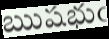
ఋషభుఁ